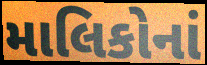
માલિકોનાં